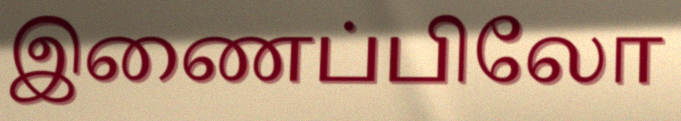
இணைப்பிலோ